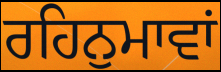
ਰਹਿਨੁਮਾਵਾਂ